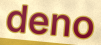
deno